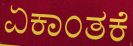
ಏಕಾಂತಕೆ